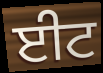
ਈਟ